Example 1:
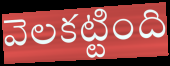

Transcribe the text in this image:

వెలకట్టింది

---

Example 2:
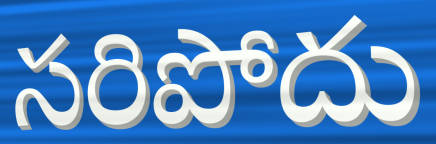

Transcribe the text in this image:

సరిపోదు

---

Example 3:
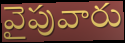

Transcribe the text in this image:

వైపువారు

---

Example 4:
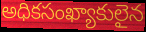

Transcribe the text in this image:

అధికసంఖ్యాకులైన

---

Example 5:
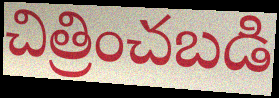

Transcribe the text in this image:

చిత్రించబడి